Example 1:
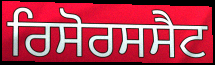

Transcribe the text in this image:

ਰਿਸੋਰਸਸੈਟ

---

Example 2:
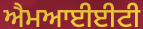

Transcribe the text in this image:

ਐਮਆਈਈਟੀ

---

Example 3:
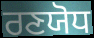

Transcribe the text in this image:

ਰਣਯੋਧ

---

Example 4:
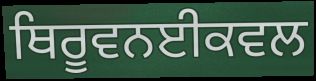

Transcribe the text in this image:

ਥਿਰੂਵਨਈਕਵਲ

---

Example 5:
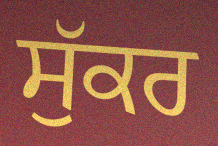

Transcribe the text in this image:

ਸੁੱਕਰ